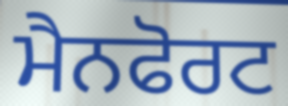
ਮੈਨਫੋਰਟ